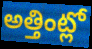
అత్తింట్లో